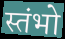
स्तंभो